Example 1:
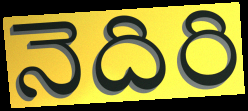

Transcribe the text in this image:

నెదిరి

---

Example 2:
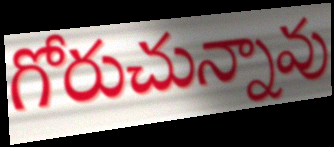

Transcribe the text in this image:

గోరుచున్నావు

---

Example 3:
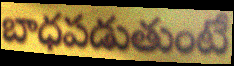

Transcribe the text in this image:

బాధపడుతుంటే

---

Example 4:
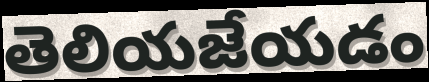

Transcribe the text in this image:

తెలియజేయడం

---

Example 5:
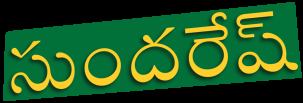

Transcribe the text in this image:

సుందరేష్